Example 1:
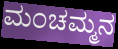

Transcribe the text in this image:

ಮಂಚಮ್ಮನ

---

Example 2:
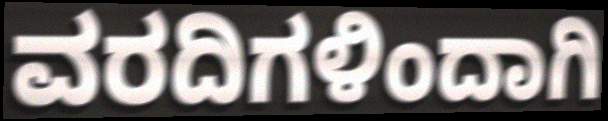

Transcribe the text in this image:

ವರದಿಗಳಿಂದಾಗಿ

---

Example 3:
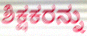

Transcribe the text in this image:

ಶಿಕ್ಷಕರನ್ನು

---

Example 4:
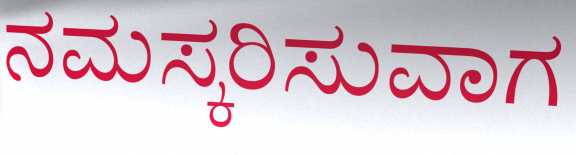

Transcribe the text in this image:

ನಮಸ್ಕರಿಸುವಾಗ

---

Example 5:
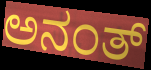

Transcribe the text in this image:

ಅನಂತ್